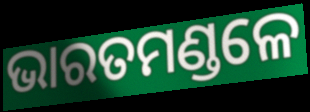
ଭାରତମଣ୍ଡଳେ